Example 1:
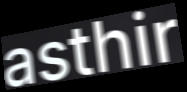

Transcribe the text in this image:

asthir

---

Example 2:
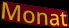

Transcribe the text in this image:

Monat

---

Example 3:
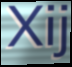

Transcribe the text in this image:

Xij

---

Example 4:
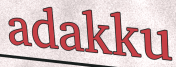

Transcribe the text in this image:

adakku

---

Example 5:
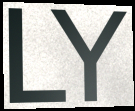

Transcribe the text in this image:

LY